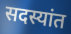
सदस्यांत